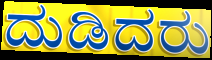
ದುಡಿದರು